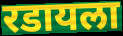
रडायला